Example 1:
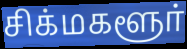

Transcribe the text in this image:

சிக்மகளூர்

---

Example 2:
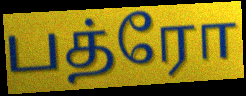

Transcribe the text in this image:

பத்ரோ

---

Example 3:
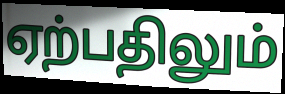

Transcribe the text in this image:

ஏற்பதிலும்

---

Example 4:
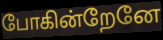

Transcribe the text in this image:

போகின்றேனே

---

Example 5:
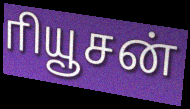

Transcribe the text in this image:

ரியூசன்